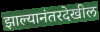
झाल्यानंतरदेखील